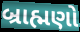
બ્રાહ્મણો